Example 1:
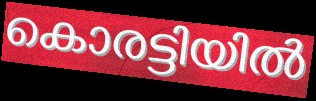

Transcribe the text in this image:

കൊരട്ടിയിൽ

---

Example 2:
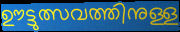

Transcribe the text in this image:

ഊട്ടുത്സവത്തിനുള്ള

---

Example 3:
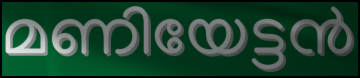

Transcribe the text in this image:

മണിയേട്ടൻ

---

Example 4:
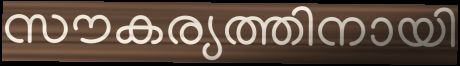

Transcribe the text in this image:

സൗകര്യത്തിനായി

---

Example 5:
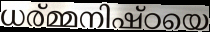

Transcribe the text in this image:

ധര്മ്മനിഷ്ഠയെ